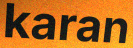
karan